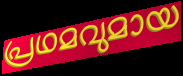
പ്രഥമവുമായ